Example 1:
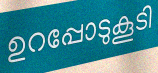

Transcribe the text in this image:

ഉറപ്പോടുകൂടി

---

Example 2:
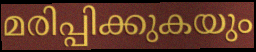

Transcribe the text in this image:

മരിപ്പിക്കുകയും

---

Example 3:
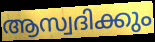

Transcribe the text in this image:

ആസ്വദിക്കും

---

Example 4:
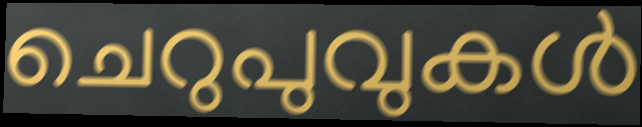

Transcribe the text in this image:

ചെറുപുവുകൾ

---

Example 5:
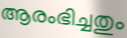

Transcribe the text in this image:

ആരംഭിച്ചതും